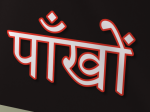
पाँखों